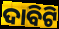
ଦାବିଟି